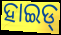
ହାଇଡ୍